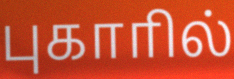
புகாரில்